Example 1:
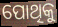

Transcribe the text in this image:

ପୋଥିକୁ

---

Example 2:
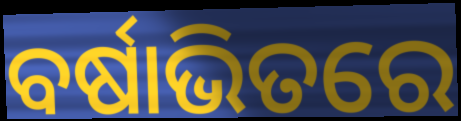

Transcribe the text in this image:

ବର୍ଷାଭିତରେ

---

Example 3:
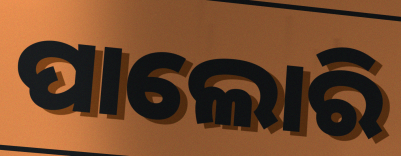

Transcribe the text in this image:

ପାଲୋରି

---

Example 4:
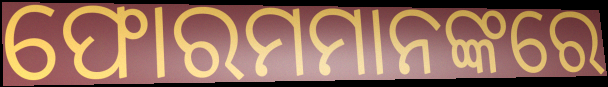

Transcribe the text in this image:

ଫୋରମମାନଙ୍କରେ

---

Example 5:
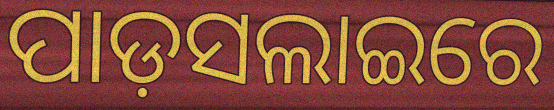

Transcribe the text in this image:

ପାଡ଼ସଲାଇରେ